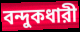
বন্দুকধারী